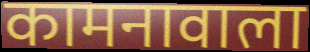
कामनावाला